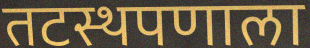
तटस्थपणाला